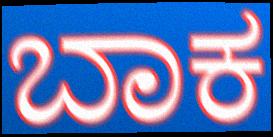
ಬಾಕ